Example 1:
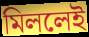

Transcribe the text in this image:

মিললেই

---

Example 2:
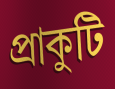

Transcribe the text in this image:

প্রাকুটি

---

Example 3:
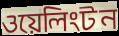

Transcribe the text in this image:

ওয়েলিংটন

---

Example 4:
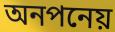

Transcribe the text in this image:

অনপনেয়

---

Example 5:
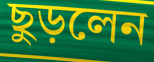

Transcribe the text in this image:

ছুড়লেন